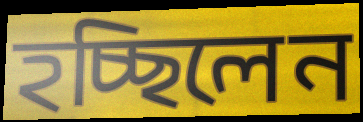
হচ্ছিলেন